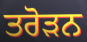
ਤਰੋੜਨ